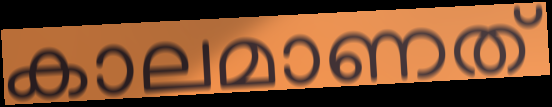
കാലമാണത്